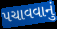
પચાવવાનું